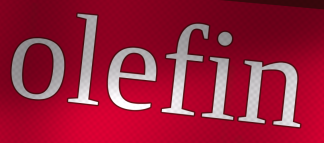
olefin